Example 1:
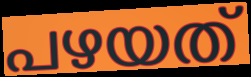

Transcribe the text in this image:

പഴയത്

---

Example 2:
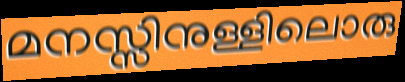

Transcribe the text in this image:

മനസ്സിനുള്ളിലൊരു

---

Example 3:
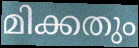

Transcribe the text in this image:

മിക്കതും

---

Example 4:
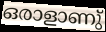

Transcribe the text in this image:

ഒരാളാണു്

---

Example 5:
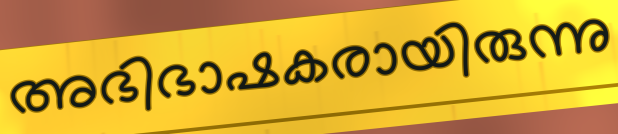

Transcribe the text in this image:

അഭിഭാഷകരായിരുന്നു